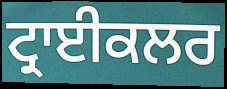
ਟ੍ਰਾਈਕਲਰ